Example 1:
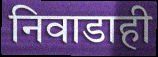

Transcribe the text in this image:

निवाडाही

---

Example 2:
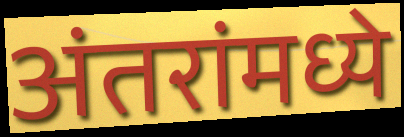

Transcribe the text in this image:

अंतरांमध्ये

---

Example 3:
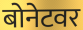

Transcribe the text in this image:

बोनेटवर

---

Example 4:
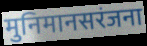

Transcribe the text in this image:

मुनिमानसरंजना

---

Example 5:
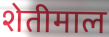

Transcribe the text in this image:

शेतीमाल